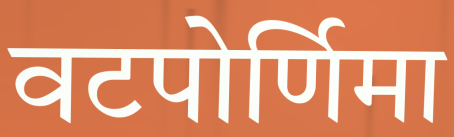
वटपोर्णिमा